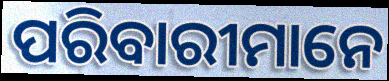
ପରିବାରୀମାନେ